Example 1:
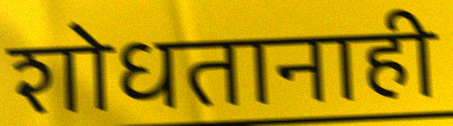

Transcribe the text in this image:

शोधतानाही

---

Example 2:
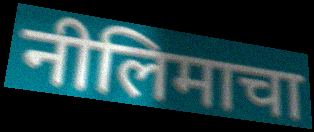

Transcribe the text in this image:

नीलिमाचा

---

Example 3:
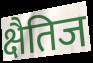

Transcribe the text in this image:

क्षैतिज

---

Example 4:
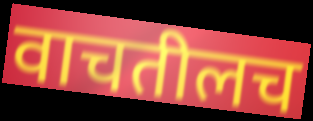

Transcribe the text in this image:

वाचतीलच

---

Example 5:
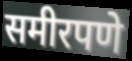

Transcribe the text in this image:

समीरपणे